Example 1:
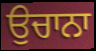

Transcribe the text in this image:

ਉਚਾਨਾ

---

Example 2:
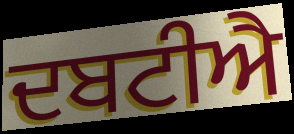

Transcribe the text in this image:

ਦਬਟੀਐ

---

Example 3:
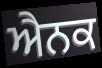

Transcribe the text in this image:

ਐਨਕ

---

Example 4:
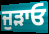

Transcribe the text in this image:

ਜੁੜਾਓ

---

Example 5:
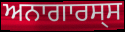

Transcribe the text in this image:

ਅਨਾਗਾਰਸ੍ਸ